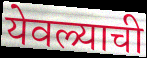
येवल्याची